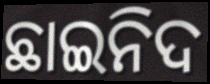
ଛାଇନିଦ